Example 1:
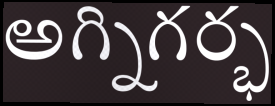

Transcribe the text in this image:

అగ్నిగర్భ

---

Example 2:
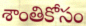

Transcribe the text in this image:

శాంతికోసం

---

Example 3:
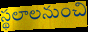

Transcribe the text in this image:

స్థలాలనుంచి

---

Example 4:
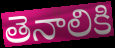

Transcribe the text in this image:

తెనాలికి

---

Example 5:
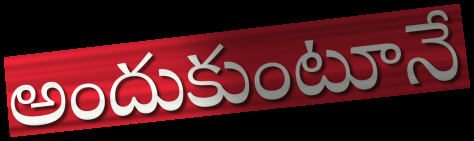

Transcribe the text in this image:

అందుకుంటూనే